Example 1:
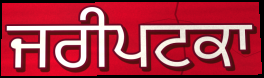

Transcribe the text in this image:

ਜਰੀਪਟਕਾ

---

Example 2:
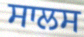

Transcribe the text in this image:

ਸਾਲਸ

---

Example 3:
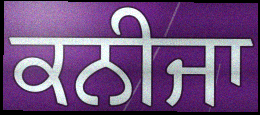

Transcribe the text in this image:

ਕਨੀਜਾ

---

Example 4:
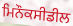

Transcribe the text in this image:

ਮਿਨੌਕਸੀਡੀਲ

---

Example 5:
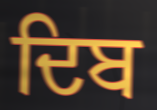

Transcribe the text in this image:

ਦਿਬ